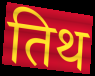
तिथ